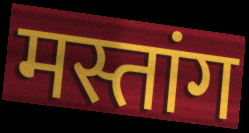
मस्तांग